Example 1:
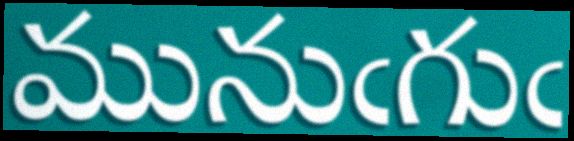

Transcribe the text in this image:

మునుఁగుఁ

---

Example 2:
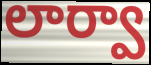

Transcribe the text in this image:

లార్వా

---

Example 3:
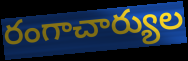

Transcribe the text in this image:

రంగాచార్యుల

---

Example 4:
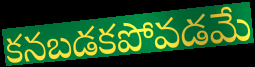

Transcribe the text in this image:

కనబడకపోవడమే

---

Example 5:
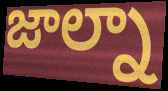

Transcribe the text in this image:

జాల్నా